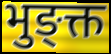
भुङ्क्त